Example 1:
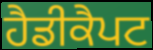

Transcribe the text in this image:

ਹੈਡੀਕੈਪਟ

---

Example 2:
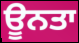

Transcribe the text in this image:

ਊਨਤਾ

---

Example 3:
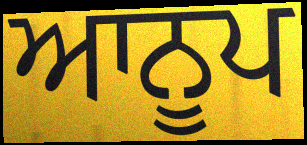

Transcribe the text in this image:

ਆਨੂਪ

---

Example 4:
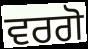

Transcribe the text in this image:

ਵਰਗੋ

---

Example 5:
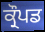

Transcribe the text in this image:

ਕ੍ਰੌਪਡ